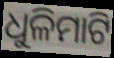
ଧୁଳିମାଟି